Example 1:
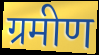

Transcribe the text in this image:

ग्रमीण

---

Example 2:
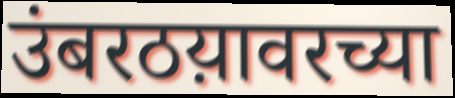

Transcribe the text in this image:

उंबरठय़ावरच्या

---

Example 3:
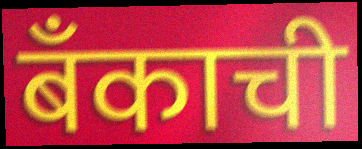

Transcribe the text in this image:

बँकाची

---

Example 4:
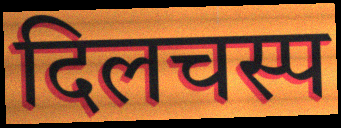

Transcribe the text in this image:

दिलचस्प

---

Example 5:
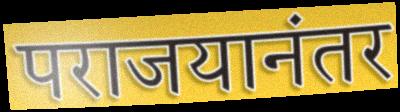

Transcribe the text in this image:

पराजयानंतर